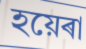
হয়েৰা